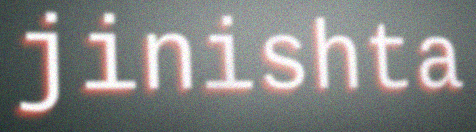
jinishta